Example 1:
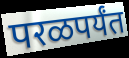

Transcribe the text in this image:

परळपर्यंत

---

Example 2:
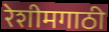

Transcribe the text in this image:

रेशीमगाठी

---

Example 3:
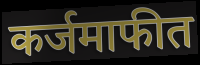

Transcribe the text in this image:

कर्जमाफीत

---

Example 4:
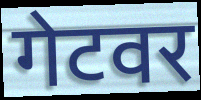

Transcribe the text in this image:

गेटवर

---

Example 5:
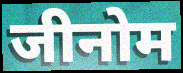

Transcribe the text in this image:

जीनोम